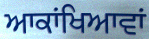
ਆਕਾਂਖਿਆਵਾਂ